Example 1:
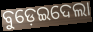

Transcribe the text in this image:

ବୁଡ଼େଇଦେଲା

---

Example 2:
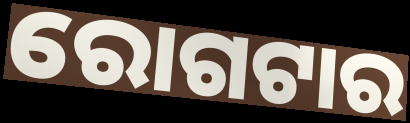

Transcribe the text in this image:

ରୋଗଟାର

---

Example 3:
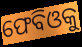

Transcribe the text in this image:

ଫେବିଓକୁ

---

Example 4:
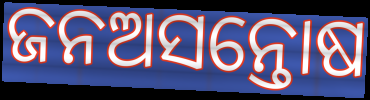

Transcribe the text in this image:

ଜନଅସନ୍ତୋଷ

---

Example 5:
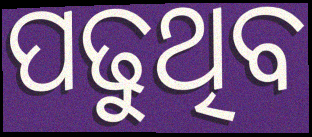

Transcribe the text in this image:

ପଢୁଥିବ